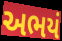
અભયં